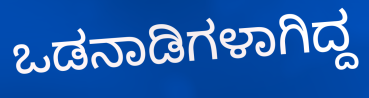
ಒಡನಾಡಿಗಳಾಗಿದ್ದ